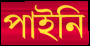
পাইনি